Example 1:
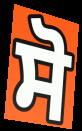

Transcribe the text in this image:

ਸੋ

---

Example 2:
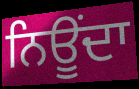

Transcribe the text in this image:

ਨਿਊਂਦਾ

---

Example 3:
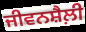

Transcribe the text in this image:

ਜੀਵਨਸ਼ੈਲ਼ੀ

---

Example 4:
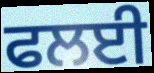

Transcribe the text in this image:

ਫਲਈ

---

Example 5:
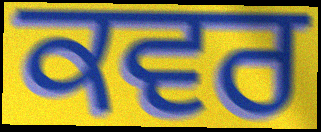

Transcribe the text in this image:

ਕਵਰ